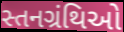
સ્તનગ્રંથિઓ